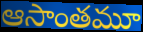
ఆసాంతమూ